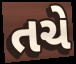
તચે